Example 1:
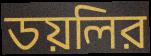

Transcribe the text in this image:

ডয়লির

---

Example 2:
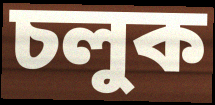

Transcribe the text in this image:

চলুক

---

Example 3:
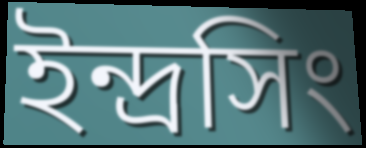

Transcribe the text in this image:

ইন্দ্রসিং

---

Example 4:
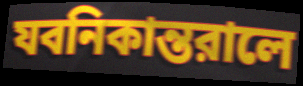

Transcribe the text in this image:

যবনিকান্তরালে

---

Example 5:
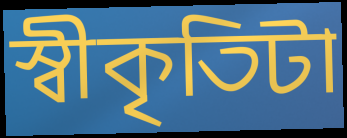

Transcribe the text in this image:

স্বীকৃতিটা